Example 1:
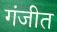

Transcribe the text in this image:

गंजीत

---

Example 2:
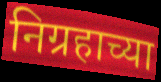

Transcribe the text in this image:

निग्रहाच्या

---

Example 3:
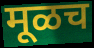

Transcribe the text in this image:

मूळच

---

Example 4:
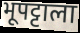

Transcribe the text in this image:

भूपट्टाला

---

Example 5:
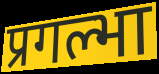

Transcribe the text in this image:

प्रगल्भा